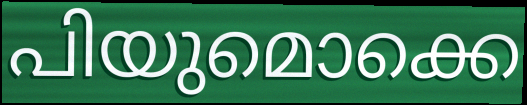
പിയുമൊക്കെ